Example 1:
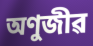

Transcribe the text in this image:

অণুজীৱ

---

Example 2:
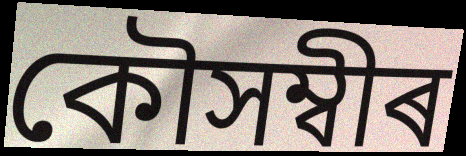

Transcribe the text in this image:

কৌসম্বীৰ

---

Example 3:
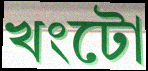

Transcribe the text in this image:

খংটো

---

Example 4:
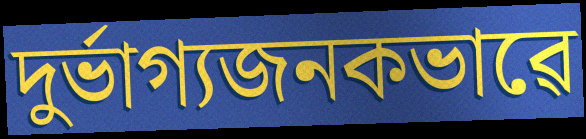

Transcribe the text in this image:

দুৰ্ভাগ্যজনকভাৱে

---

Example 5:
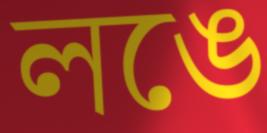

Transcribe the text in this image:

লঙে